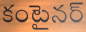
కంటైనర్